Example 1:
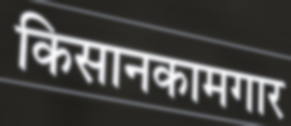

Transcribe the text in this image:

किसानकामगार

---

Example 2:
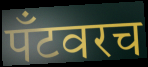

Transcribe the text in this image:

पँटवरच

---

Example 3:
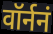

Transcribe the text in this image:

वॉर्ननं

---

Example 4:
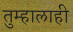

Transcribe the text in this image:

तुम्हालाही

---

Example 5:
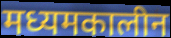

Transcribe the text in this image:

मध्यमकालीन